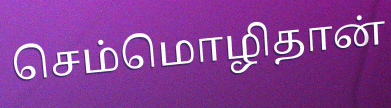
செம்மொழிதான்